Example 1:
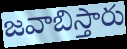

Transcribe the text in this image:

జవాబిస్తారు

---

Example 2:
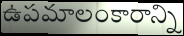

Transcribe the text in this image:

ఉపమాలంకారాన్ని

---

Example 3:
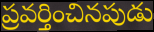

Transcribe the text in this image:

ప్రవర్తించినపుడు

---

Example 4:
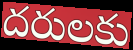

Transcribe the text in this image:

దరులకు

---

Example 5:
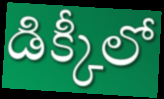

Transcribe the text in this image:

డిక్కీలో